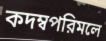
কদম্বপরিমলে